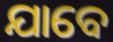
ଯାବେ